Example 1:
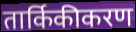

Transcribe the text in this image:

तार्किकीकरण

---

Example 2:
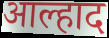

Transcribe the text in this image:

आल्हाद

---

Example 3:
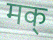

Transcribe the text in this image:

मक्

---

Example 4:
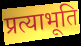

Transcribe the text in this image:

प्रत्याभूति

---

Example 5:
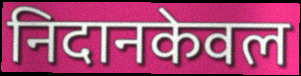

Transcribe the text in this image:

निदानकेवल